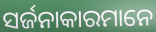
ସର୍ଜନାକାରମାନେ